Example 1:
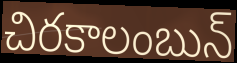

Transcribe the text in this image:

చిరకాలంబున్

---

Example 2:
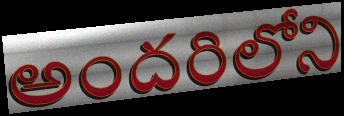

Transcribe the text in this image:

అందరిలోని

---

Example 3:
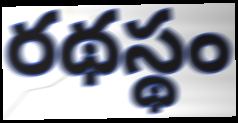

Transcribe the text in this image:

రథస్థం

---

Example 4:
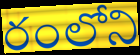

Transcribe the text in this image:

రంలోని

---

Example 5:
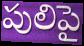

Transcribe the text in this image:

పులిపై